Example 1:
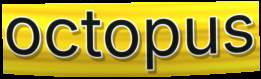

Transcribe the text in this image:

octopus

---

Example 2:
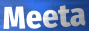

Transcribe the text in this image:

Meeta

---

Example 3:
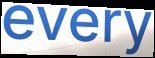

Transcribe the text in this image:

every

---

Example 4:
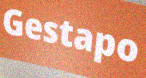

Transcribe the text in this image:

Gestapo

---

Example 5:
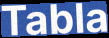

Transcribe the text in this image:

Tabla